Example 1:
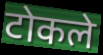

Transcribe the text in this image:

टोकले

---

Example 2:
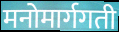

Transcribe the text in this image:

मनोमार्गगती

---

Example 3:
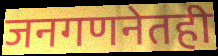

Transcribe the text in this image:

जनगणनेतही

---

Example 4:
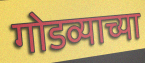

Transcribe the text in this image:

गोडव्याच्या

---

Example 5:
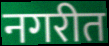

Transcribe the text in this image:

नगरीत